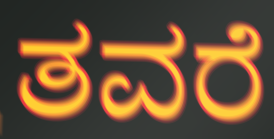
ತವರೆ